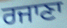
ਰਜਾਣਾ